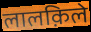
लालक़िले